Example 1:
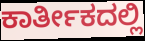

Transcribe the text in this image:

ಕಾರ್ತೀಕದಲ್ಲಿ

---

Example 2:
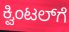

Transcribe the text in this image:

ಕ್ವಿಂಟಲ್‌ಗೆ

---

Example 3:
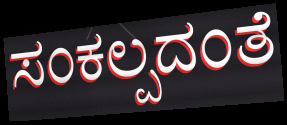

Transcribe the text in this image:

ಸಂಕಲ್ಪದಂತೆ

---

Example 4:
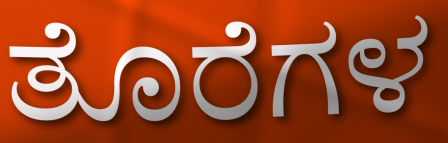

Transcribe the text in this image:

ತೊರೆಗಳ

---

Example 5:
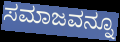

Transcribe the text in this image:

ಸಮಾಜವನ್ನೂ